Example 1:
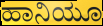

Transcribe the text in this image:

ಹಾನಿಯೂ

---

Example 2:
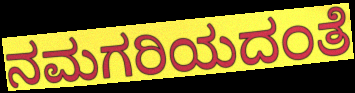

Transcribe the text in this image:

ನಮಗರಿಯದಂತೆ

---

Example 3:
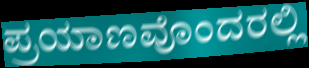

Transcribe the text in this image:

ಪ್ರಯಾಣವೊಂದರಲ್ಲಿ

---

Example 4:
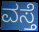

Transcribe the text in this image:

ವಸ್ತೆ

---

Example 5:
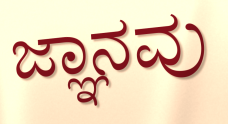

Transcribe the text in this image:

ಜ್ಞಾನವು